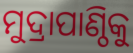
ମୁଦ୍ରାପାଣ୍ଠିକୁ